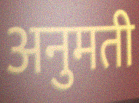
अनुमती